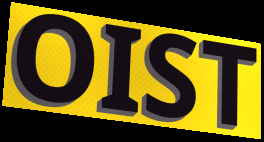
OIST